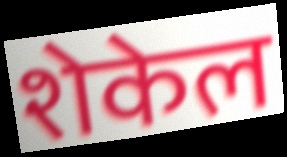
शेकेल